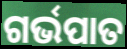
ଗର୍ଭପାତ